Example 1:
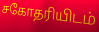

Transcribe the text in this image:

சகோதரியிடம்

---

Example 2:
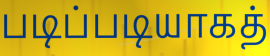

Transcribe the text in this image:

படிப்படியாகத்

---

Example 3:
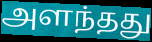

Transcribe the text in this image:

அளந்தது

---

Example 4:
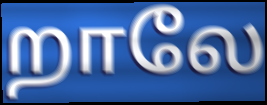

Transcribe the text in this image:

றாலே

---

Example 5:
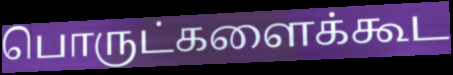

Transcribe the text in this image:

பொருட்களைக்கூட